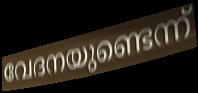
വേദനയുണ്ടെന്ന്